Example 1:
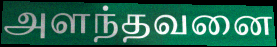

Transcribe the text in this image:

அளந்தவனை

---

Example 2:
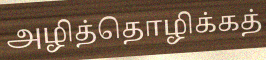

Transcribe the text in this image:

அழித்தொழிக்கத்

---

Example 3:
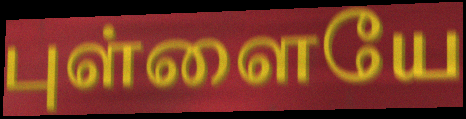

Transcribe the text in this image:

புள்ளையே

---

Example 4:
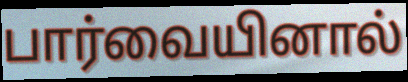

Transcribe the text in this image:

பார்வையினால்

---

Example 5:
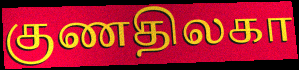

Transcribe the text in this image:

குணதிலகா